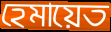
হেমায়েত